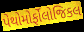
પેથોમોર્ફોલોજિકલ